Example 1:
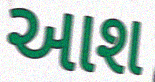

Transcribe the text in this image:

આશ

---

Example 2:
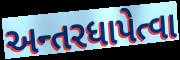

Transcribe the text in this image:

અન્તરધાપેત્વા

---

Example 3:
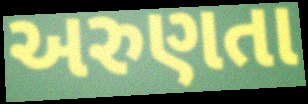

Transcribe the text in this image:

અરુણતા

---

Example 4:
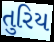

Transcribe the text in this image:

તુરિય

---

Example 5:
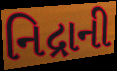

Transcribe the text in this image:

નિદ્રાની